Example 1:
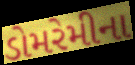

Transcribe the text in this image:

ડોમરેમીના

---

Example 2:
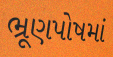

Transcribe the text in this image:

ભ્રૂણપોષમાં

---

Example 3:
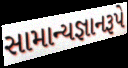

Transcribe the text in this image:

સામાન્યજ્ઞાનરૂપે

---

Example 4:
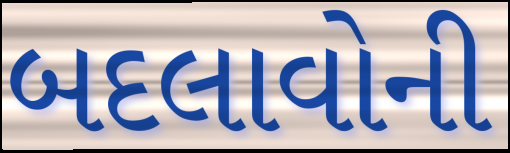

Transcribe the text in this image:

બદલાવોની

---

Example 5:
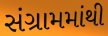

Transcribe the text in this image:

સંગ્રામમાંથી